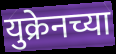
युक्रेनच्या